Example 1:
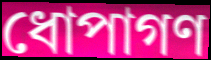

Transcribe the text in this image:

ধোপাগণ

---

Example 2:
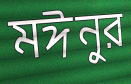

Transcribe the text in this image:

মঈনুর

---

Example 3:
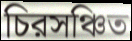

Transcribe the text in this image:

চিরসঞ্চিত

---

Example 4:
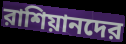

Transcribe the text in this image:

রাশিয়ানদের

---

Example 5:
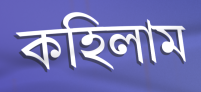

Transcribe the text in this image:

কহিলাম